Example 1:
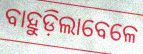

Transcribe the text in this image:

ବାହୁଡ଼ିଲାବେଳେ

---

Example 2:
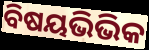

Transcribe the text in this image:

ବିଷୟଭିଭିକ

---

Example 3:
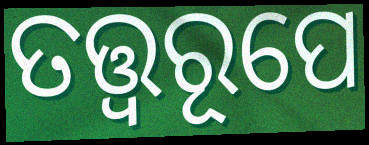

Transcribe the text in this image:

ତତ୍ତ୍ୱରୂପେ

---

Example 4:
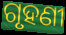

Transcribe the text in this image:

ଗୃହଣୀ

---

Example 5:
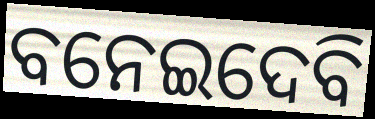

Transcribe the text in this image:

ବନେଇଦେବି